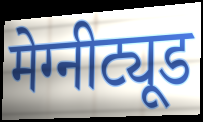
मेग्नीट्यूड